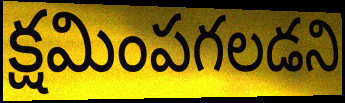
క్షమింపగలడని